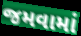
જમવામાં